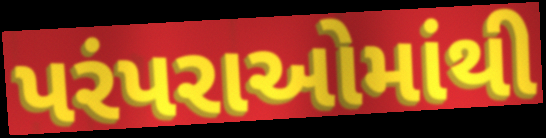
પરંપરાઓમાંથી